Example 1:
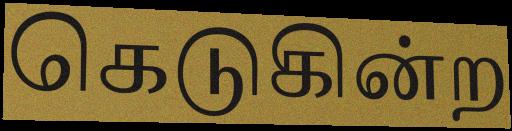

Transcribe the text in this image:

கெடுகின்ற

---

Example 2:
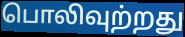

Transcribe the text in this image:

பொலிவுற்றது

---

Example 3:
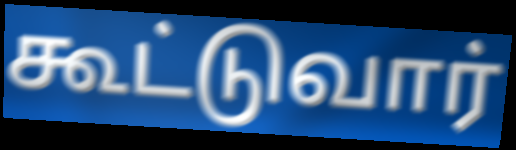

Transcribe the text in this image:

கூட்டுவார்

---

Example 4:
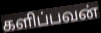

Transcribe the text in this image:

களிப்பவன்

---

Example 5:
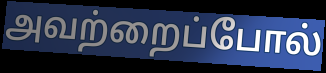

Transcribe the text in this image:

அவற்றைப்போல்